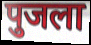
पुजला